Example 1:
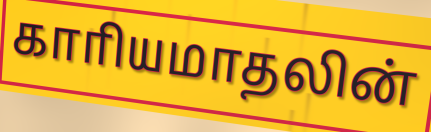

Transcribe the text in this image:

காரியமாதலின்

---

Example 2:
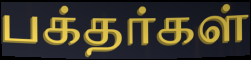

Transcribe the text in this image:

பக்தர்கள்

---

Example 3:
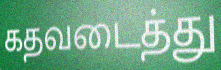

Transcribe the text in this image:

கதவடைத்து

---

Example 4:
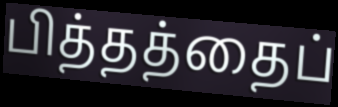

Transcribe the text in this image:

பித்தத்தைப்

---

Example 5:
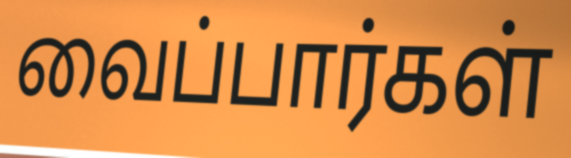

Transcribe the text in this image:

வைப்பார்கள்